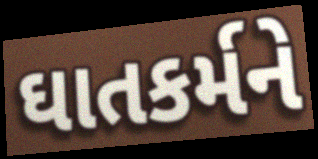
ઘાતકર્મને